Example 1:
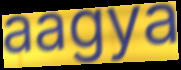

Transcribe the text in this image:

aagya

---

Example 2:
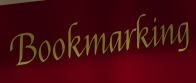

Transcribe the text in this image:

Bookmarking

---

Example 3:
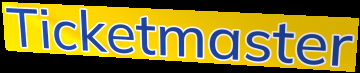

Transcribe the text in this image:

Ticketmaster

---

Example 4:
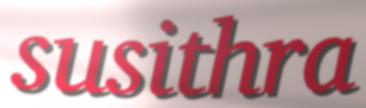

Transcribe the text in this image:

susithra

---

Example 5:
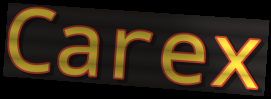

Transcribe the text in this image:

Carex